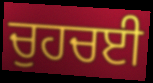
ਚੁਹਚਈ